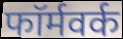
फॉर्मवर्क